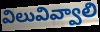
విలువివ్వాలి